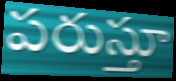
పరుస్తూ